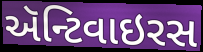
ઍન્ટિવાઇરસ